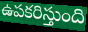
ఉపకరిస్తుంది